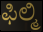
ಫಿಲ್ಮಿ